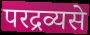
परद्रव्यसे